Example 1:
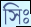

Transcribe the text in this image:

সিঃ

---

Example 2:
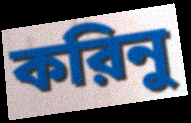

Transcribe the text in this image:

করিনু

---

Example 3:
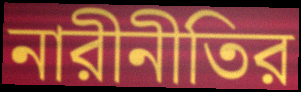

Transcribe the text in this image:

নারীনীতির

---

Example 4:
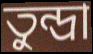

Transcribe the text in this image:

তুন্দ্রা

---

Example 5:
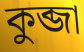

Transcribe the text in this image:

কুব্জা